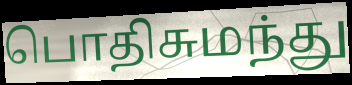
பொதிசுமந்து